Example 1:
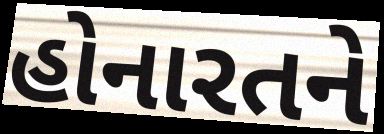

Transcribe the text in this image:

હોનારતને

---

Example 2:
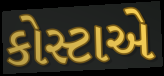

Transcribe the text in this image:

કોસ્ટાએ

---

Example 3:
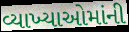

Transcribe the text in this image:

વ્યાખ્યાઓમાંની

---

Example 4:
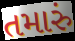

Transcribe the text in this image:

તમારું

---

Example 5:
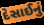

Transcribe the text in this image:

દેસાઈનું